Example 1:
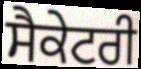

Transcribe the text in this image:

ਸੈਕੇਟਰੀ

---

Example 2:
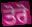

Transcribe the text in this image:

ਤੋਰੋ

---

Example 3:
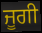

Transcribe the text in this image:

ਜੂਗੀ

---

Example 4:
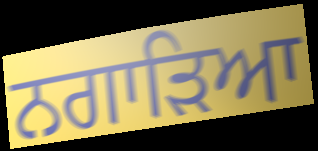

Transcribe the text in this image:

ਨਗਾੜਿਆ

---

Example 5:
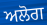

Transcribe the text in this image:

ਅਲੋਗ